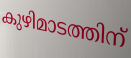
കുഴിമാടത്തിന്